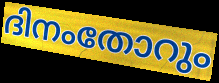
ദിനംതോറും